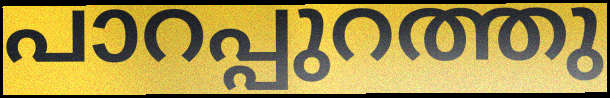
പാറപ്പുറത്തു